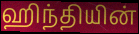
ஹிந்தியின்